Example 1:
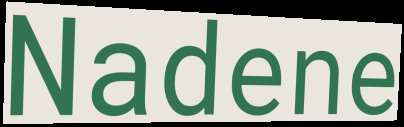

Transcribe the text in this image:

Nadene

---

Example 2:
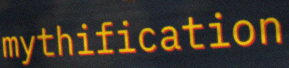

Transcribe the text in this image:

mythification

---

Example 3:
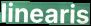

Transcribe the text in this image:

linearis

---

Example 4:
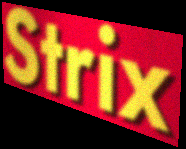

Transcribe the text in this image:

Strix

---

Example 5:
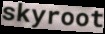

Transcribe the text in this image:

skyroot